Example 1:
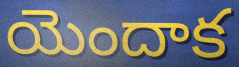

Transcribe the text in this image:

యెందాక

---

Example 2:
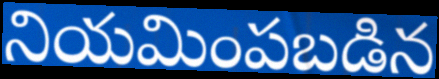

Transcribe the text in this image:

నియమింపబడిన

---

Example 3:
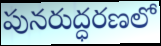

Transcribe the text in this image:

పునరుద్ధరణలో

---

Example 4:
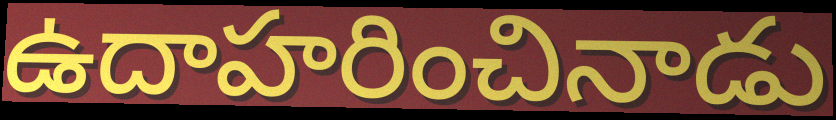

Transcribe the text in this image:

ఉదాహరించినాడు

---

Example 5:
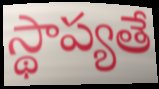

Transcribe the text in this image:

స్థాప్యతే